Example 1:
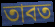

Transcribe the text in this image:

তাবত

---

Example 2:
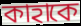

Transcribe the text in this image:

কাহাকে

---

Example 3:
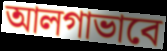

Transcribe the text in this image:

আলগাভাবে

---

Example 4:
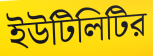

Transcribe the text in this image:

ইউটিলিটির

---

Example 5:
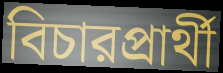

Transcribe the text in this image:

বিচারপ্রার্থী